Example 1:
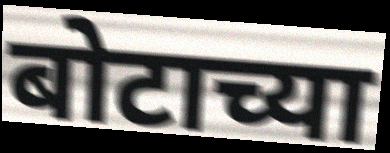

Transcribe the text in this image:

बोटाच्या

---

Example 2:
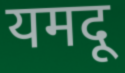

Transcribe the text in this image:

यमदू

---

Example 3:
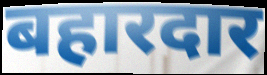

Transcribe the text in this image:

बहारदार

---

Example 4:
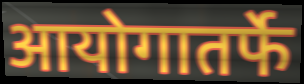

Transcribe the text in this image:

आयोगातर्फे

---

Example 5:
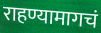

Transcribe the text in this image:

राहण्यामागचं